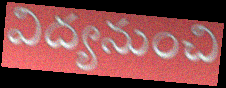
విద్యనుంచి